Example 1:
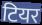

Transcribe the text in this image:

टियर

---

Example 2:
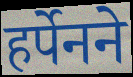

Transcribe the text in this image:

हर्पेनने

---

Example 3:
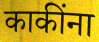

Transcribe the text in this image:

काकींना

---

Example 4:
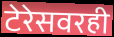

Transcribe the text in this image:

टेरेसवरही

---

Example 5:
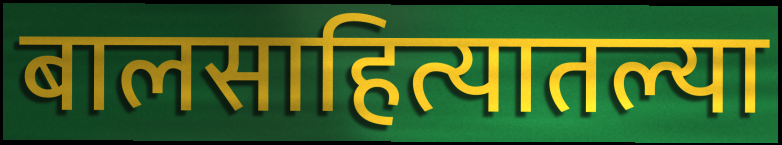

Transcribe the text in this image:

बालसाहित्यातल्या